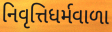
નિવૃત્તિધર્મવાળા